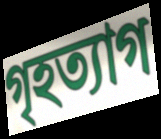
গৃহত্যাগ